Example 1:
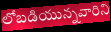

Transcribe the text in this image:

లోబడియున్నవారిని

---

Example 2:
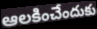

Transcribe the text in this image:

ఆలకించేందుకు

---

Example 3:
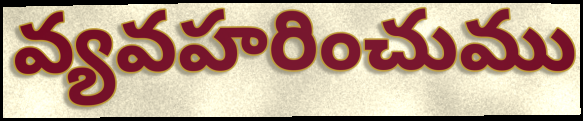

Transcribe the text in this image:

వ్యవహరించుము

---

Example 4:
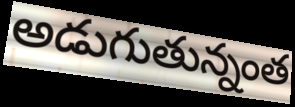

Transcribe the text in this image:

అడుగుతున్నంత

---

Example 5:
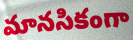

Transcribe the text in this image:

మానసికంగా